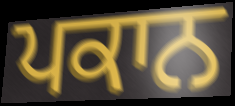
ਪਕਾਨ